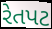
રેતપટ